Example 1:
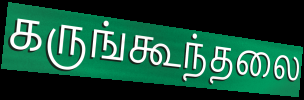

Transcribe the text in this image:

கருங்கூந்தலை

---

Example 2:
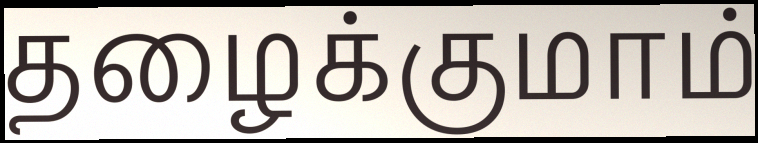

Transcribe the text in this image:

தழைக்குமாம்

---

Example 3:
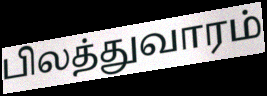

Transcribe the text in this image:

பிலத்துவாரம்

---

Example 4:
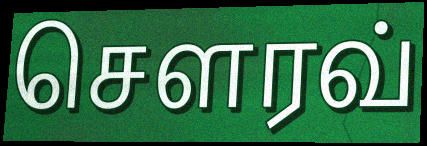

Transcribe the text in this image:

சௌரவ்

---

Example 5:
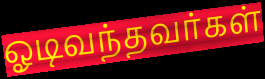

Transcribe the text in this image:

ஓடிவந்தவர்கள்